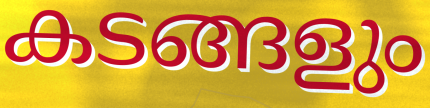
കടങ്ങളും